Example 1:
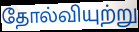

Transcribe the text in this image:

தோல்வியுற்று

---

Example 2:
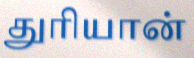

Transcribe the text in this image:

துரியான்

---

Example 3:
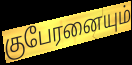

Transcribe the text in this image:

குபேரனையும்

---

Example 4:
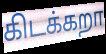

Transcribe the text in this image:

கிடக்கறா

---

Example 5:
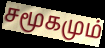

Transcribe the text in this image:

சமூகமும்